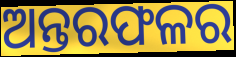
ଅନ୍ତରଫଳର